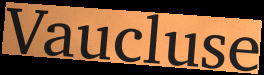
Vaucluse